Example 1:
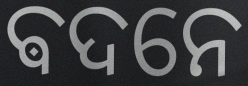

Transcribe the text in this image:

ଵଦନେ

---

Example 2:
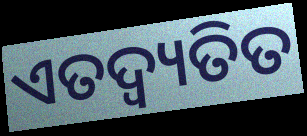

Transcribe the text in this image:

ଏତଦ୍ବ୍ୟତିତ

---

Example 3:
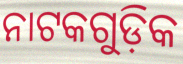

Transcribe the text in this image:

ନାଟକଗୁଡ଼ିକ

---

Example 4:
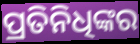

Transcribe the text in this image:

ପ୍ରତିନିଧିଙ୍କର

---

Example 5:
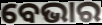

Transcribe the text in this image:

ବେଭାର